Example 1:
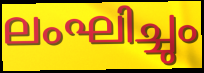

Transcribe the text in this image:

ലംഘിച്ചും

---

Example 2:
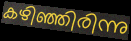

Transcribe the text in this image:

കഴിഞ്ഞിരിന്നു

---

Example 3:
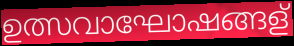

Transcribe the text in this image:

ഉത്സവാഘോഷങ്ങള്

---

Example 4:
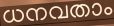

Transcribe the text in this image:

ധനവതാം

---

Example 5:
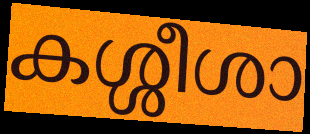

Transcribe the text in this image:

കശ്ശീശാ